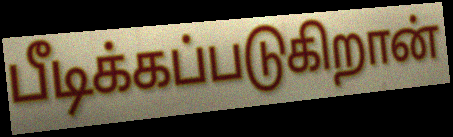
பீடிக்கப்படுகிறான்